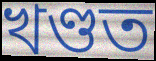
খণ্ডত